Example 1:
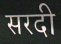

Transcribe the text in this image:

सरदी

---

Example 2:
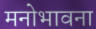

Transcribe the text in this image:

मनोभावना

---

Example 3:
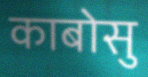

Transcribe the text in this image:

काबोसु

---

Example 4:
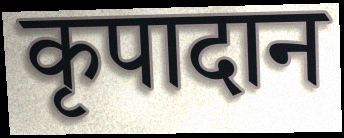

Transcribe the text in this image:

कृपादान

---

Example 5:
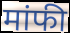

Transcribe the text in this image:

मांफी